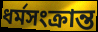
ধর্মসংক্রান্ত